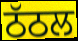
ਠੱਠਲ